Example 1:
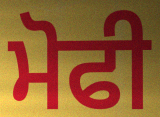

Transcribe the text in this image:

ਮੋਫੀ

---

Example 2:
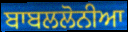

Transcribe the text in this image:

ਬਾਬਲਲੋਨੀਆ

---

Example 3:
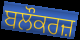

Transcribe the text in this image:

ਬਲੌਕਰਜ਼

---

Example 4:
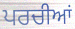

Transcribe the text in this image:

ਪਰਚੀਆਂ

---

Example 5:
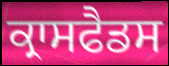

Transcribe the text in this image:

ਕ੍ਰਾਸਫੈਡਸ